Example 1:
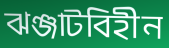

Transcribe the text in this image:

ঝঞ্জাটবিহীন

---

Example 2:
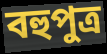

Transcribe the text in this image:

বহুপুত্র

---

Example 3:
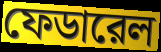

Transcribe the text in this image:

ফেডারেল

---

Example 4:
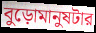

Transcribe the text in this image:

বুড়োমানুষটার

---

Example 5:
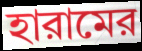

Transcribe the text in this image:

হারামের